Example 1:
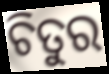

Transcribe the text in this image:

ଚିତୁର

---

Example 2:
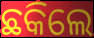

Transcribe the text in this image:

ଛକିଲେ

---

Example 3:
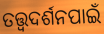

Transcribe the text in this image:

ତତ୍ତ୍ଵଦର୍ଶନପାଇଁ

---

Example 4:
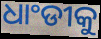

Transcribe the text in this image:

ଧାଂଡୀକୁ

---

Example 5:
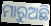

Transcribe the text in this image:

ମାରୁଅଛି